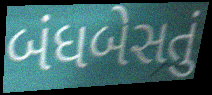
બંધબેસતું